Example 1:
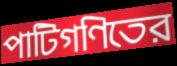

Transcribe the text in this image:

পাটিগণিতের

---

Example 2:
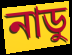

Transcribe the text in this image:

নাডু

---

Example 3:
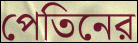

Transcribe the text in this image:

পেতিনের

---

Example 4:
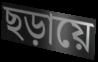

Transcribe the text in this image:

ছড়ায়ে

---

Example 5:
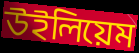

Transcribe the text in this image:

উইলিয়েম